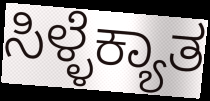
ಸಿಳ್ಳೆಕ್ಯಾತ